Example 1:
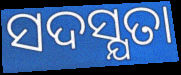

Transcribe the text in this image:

ସଦସ୍ଯତା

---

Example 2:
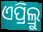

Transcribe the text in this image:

ଏପ୍ରିଲ୍ରୁ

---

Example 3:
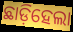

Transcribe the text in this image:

ଛାଡ଼ିହେଲା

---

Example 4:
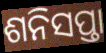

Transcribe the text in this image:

ଶନିସପ୍ତା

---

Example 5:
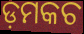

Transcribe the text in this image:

ଡ଼ମକଚ